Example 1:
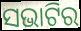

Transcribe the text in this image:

ସଭାଟିର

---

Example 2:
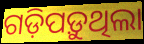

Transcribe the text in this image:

ଗଡ଼ିପଡ଼ୁଥିଲା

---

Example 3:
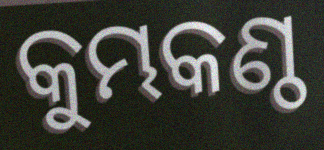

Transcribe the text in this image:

କୁମ୍ଭକଣ୍ଠ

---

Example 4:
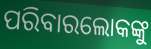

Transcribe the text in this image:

ପରିବାରଲୋକଙ୍କୁ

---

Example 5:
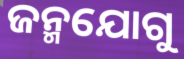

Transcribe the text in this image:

ଜନ୍ମଯୋଗୁ